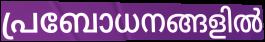
പ്രബോധനങ്ങളിൽ